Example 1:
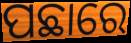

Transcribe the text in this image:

ପଛାରେ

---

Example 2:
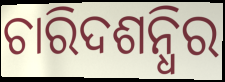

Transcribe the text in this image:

ଚାରିଦଶନ୍ଧିର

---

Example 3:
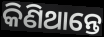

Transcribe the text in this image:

କିଣିଥାନ୍ତେ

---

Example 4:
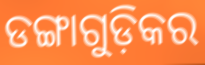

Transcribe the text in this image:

ଡଙ୍ଗାଗୁଡ଼ିକର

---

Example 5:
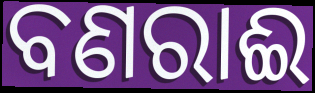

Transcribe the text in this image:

ବଣରାଈ